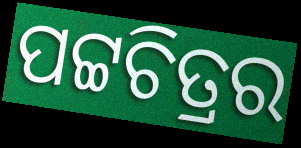
ପଟ୍ଟଚିତ୍ରର